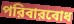
পরিবারবোধ